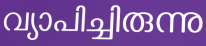
വ്യാപിച്ചിരുന്നു